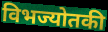
विभज्योतकी